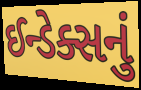
ઈન્ડેક્સનું